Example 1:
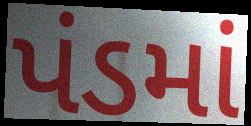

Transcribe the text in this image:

પંડમાં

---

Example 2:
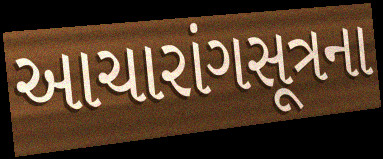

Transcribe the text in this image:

આચારાંગસૂત્રના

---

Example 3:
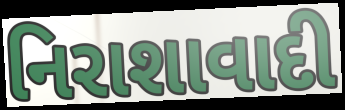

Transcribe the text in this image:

નિરાશાવાદી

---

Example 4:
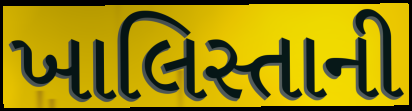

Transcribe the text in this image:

ખાલિસ્તાની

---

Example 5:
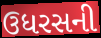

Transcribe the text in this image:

ઉધરસની